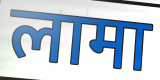
लामा